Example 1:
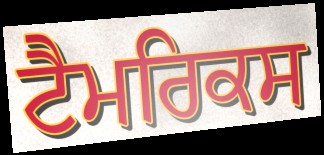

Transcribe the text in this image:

ਟੈਮਰਿਕਸ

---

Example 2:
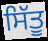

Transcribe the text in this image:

ਸਿੱਤੂ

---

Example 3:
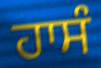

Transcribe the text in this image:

ਹਾਸੰ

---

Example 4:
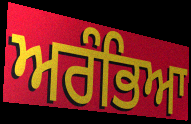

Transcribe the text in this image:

ਅਰੰਭਿਆ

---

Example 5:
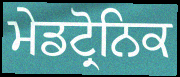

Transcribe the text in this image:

ਮੇਡਟ੍ਰੋਨਿਕ